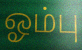
ஓம்பு